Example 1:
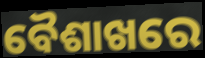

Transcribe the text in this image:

ବୈଶାଖରେ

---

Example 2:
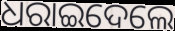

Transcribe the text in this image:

ଧରାଇଦେଲେ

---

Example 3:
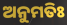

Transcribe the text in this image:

ଅନୁମତିଃ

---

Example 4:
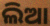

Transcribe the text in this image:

ଲିଆ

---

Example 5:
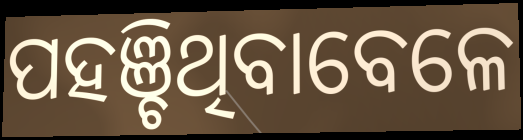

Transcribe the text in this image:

ପହଞ୍ଚିଥିବାବେଳେ